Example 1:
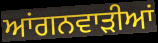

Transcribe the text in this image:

ਆਂਗਨਵਾੜੀਆਂ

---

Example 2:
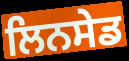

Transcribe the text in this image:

ਲਿਨਸੇਡ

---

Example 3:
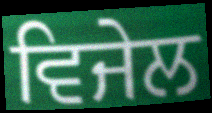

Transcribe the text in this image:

ਵਿਜੇਲ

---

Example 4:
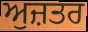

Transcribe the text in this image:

ਅੁਜ਼ਤਰ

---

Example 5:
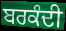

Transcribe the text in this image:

ਬਰਕੰਦੀ